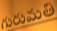
గురుమతి